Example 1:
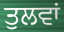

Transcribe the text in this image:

ਤੁਲਵਾਂ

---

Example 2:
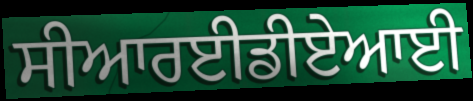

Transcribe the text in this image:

ਸੀਆਰਈਡੀਏਆਈ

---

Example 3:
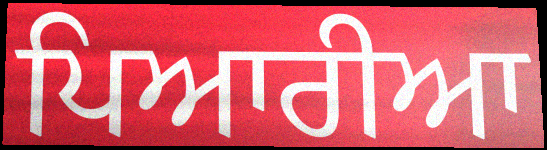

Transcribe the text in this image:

ਪਿਆਰੀਆ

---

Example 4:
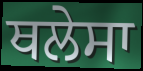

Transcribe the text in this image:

ਥਲੇਸਾ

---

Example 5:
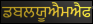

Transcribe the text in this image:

ਡਬਲਯੂਐਮਐਫ